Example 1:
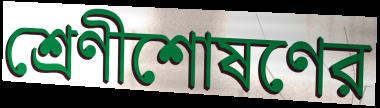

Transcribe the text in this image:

শ্রেণীশোষণের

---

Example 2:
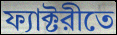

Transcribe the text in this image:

ফ্যাক্টরীতে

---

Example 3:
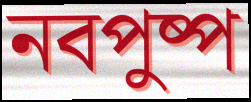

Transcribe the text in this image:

নবপুষ্প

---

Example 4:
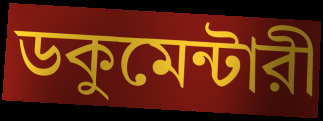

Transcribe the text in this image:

ডকুমেন্টারী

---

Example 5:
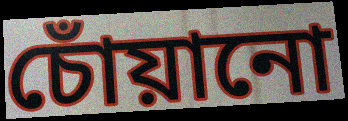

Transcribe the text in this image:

চোঁয়ানো